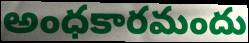
అంధకారమందు